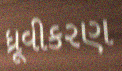
ધ્રૂવીકરણ